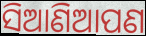
ସିଆଣିଆପଣ